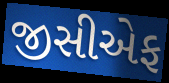
જીસીએફ